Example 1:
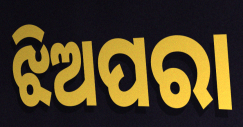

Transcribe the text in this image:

ଝିଅପରା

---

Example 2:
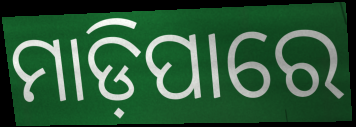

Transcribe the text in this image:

ମାଡ଼ିପାରେ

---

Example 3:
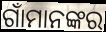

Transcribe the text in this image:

ଗାଁମାନଙ୍କର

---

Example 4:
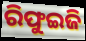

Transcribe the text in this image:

ରିଫୁଇଜି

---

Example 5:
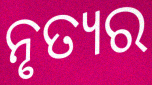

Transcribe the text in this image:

ନୃତ୍ୟର